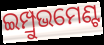
ଇମ୍ପ୍ରୁଭମେଣ୍ଟ